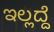
ಇಲ್ಲದ್ದೆ